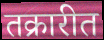
तक्रारीत